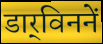
डार्विननें